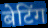
बेटिंग